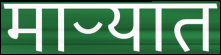
माऱ्यात